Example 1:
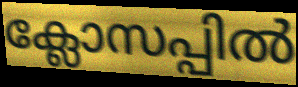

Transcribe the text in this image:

ക്ലോസപ്പിൽ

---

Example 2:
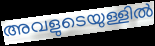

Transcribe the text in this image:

അവളുടെയുള്ളിൽ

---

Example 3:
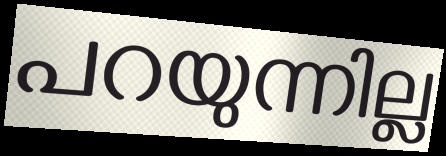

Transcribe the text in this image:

പറയുന്നില്ല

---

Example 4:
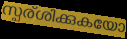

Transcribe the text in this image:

സ്പര്ശിക്കുകയോ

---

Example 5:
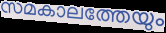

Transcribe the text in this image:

സമകാലത്തേയും